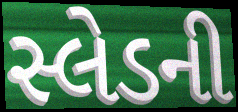
સ્લેડની